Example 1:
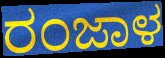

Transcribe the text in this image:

ರಂಜಾಳ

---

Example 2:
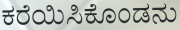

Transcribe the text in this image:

ಕರೆಯಿಸಿಕೊಂಡನು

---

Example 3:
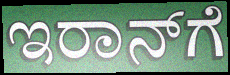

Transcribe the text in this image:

ಇರಾನ್‌ಗೆ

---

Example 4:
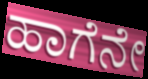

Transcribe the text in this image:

ಹಾಗೆನೇ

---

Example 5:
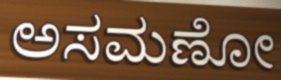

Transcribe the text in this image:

ಅಸಮಣೋ